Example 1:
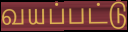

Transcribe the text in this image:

வயப்பட்டு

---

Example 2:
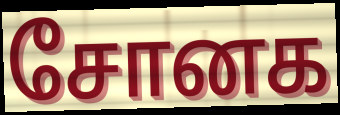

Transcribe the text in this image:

சோனக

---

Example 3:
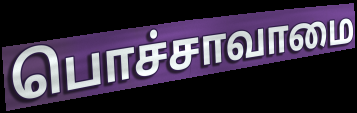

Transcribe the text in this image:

பொச்சாவாமை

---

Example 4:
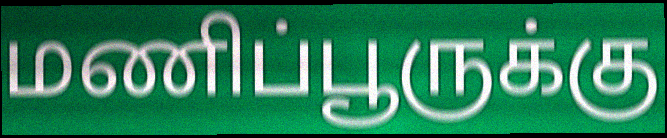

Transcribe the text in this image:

மணிப்பூருக்கு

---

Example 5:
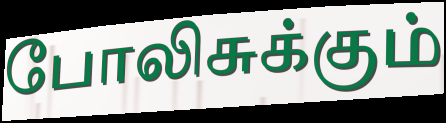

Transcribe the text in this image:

போலிசுக்கும்